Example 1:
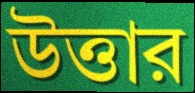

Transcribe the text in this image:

উত্তার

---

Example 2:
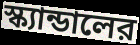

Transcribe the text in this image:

স্ক্যান্ডালের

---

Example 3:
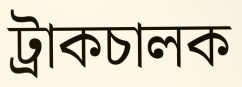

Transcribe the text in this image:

ট্রাকচালক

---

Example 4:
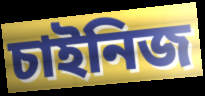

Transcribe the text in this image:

চাইনিজ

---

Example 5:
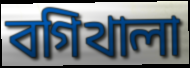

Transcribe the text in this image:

বগিথালা